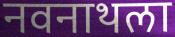
नवनाथला